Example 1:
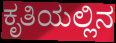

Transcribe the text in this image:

ಕೃತಿಯಲ್ಲಿನ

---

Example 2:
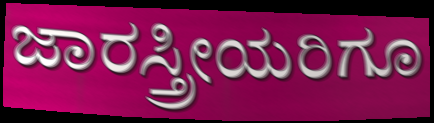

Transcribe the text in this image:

ಜಾರಸ್ತ್ರೀಯರಿಗೂ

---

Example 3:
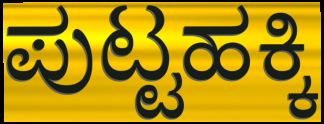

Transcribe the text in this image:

ಪುಟ್ಟಹಕ್ಕಿ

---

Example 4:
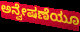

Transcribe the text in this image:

ಅನ್ವೇಷಣೆಯೂ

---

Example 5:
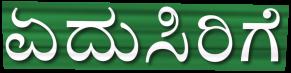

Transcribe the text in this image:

ಏದುಸಿರಿಗೆ